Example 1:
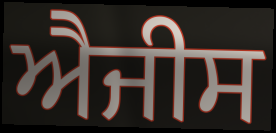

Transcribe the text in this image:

ਐਜੀਸ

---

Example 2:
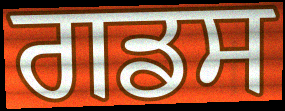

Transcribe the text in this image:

ਗਡਸ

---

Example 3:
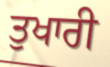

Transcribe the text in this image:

ਤੁਖਾਰੀ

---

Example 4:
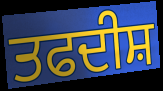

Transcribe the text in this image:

ਤਫਦੀਸ਼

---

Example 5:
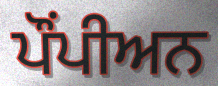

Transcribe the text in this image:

ਪੌਂਪੀਅਨ